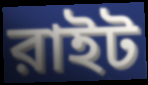
রাইট